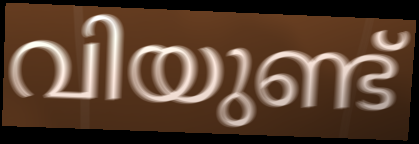
വിയുണ്ട്